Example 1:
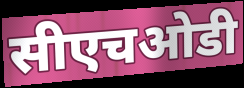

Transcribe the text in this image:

सीएचओडी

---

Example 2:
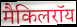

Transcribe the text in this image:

मैकिलरॉय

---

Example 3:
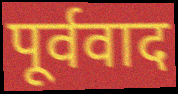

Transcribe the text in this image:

पूर्ववाद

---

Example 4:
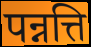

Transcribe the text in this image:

पन्नत्ति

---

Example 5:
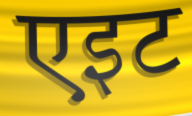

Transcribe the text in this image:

एइट